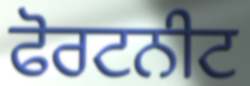
ਫੋਰਟਨੀਟ